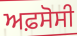
ਅਫ਼ਸੋਸੀ